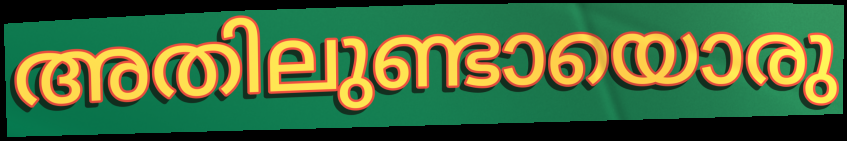
അതിലുണ്ടായൊരു